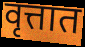
वृत्तात